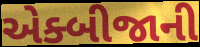
એક્બીજાની